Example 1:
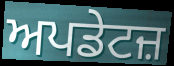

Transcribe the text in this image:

ਅਪਡੇਟਜ਼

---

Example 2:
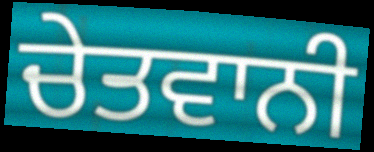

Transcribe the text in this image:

ਚੇਤਵਾਨੀ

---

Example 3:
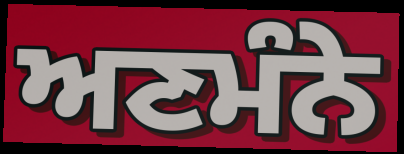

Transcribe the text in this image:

ਅਣਮੰਨੇ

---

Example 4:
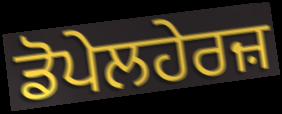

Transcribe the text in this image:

ਡੋਪੇਲਹੇਰਜ਼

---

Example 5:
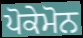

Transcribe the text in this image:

ਪੋਕੇਮੋਨ